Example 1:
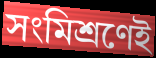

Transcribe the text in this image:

সংমিশ্রণেই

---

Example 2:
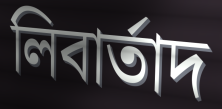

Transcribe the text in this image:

লিবার্তাদ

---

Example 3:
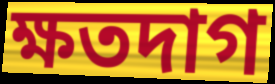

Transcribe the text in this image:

ক্ষতদাগ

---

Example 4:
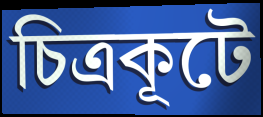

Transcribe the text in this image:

চিত্রকূটে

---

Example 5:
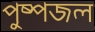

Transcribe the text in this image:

পুষ্পজল